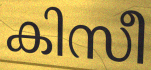
കിസീ